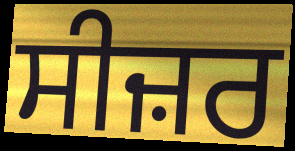
ਸੀਜ਼ਰ